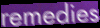
remedies